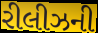
રીલીઝની